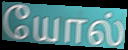
யோல்